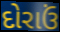
દોરાઉં